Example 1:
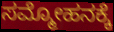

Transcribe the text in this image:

ಸಮ್ಮೋಹನಕ್ಕೆ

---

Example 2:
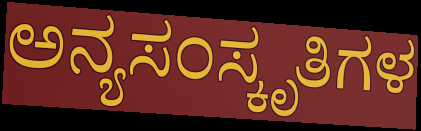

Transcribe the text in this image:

ಅನ್ಯಸಂಸ್ಕೃತಿಗಳ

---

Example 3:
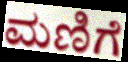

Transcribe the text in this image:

ಮಣಿಗೆ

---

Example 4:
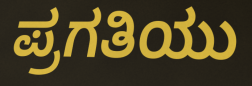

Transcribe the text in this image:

ಪ್ರಗತಿಯು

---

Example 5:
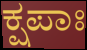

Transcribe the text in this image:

ಕ್ಷಪಾಃ